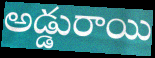
అడ్డురాయి